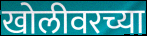
खोलीवरच्या